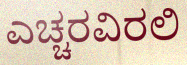
ಎಚ್ಚರವಿರಲಿ